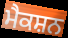
ਮੈਕਸ਼ਨ